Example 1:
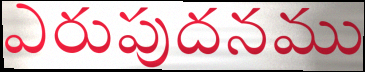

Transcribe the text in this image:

ఎరుపుదనము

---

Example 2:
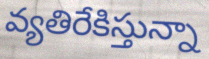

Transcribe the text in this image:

వ్యతిరేకిస్తున్నా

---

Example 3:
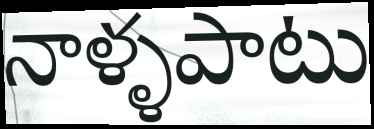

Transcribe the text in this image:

నాళ్ళపాటు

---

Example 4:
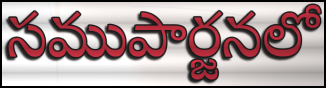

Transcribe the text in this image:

సముపార్జనలో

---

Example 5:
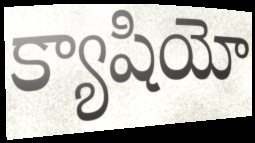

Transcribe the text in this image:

క్యాషియో